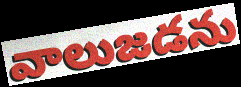
వాలుజడను